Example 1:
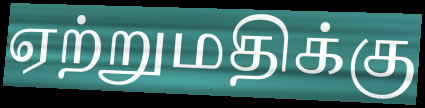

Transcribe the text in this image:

ஏற்றுமதிக்கு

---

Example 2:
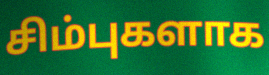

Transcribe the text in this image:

சிம்புகளாக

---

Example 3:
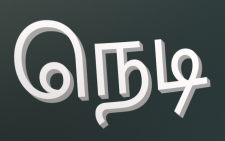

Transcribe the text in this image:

நெடி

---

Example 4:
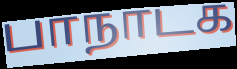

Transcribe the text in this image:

பாநாடக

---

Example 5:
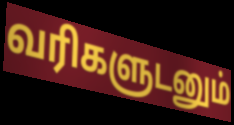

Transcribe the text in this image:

வரிகளுடனும்